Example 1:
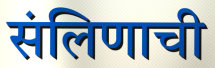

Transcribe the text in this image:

संलिणाची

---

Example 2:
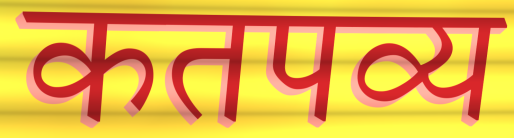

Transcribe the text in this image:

कतपव्य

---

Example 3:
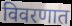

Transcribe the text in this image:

विवरणात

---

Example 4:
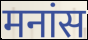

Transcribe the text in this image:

मनांस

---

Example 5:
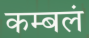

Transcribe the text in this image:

कम्बलं